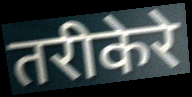
तरीकेरे